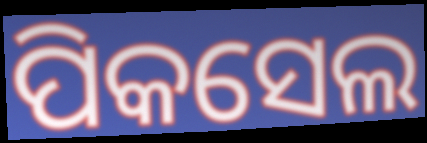
ପିକସେଲ